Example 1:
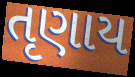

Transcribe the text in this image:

તૃણાય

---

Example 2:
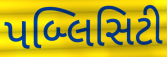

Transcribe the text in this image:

પબ્લિસિટી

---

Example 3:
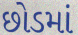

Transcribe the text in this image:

છોડમાં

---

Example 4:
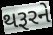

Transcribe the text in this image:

થરૂરને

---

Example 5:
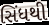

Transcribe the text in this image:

સિંધથી